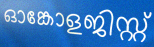
ഓങ്കോളജിസ്റ്റ്